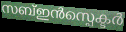
സബ്ഇൻസ്പെക്ടർ